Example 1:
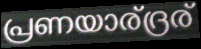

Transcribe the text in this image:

പ്രണയാര്ദ്രര്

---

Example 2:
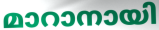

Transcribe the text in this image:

മാറാനായി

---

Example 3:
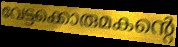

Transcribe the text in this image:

വേട്ടക്കൊരുമകന്റെ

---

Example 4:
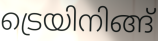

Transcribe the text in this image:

ട്രെയിനിങ്ങ്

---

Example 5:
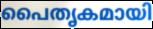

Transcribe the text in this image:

പൈതൃകമായി